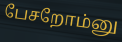
பேசறோம்னு